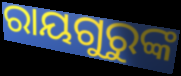
ରାୟଗୁରୁଙ୍କ